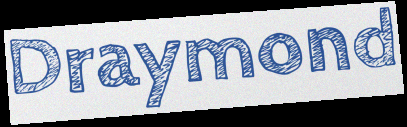
Draymond